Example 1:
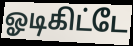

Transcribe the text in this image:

ஓடிகிட்டே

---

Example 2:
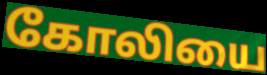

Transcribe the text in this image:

கோலியை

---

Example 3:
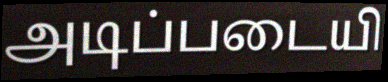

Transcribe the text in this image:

அடிப்படையி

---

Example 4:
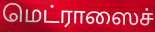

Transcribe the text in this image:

மெட்ராஸைச்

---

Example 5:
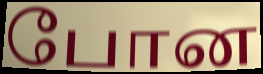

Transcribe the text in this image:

போன